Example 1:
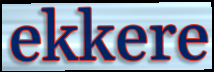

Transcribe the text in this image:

ekkere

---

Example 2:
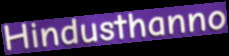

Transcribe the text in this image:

Hindusthanno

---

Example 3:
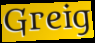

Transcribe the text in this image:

Greig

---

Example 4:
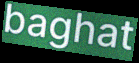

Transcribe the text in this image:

baghat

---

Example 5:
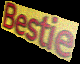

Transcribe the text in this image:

Bestie